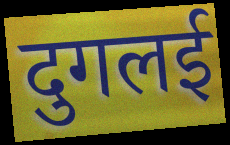
दुगलई